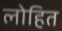
लोहित